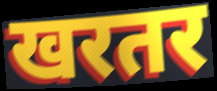
खरतर